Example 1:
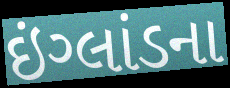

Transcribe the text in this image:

ઇંગ્લાંડના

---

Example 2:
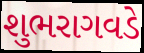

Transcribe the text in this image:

શુભરાગવડે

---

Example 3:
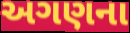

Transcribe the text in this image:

અગણના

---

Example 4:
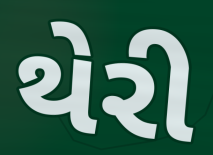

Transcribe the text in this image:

થેરી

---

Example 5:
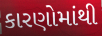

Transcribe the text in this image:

કારણોમાંથી